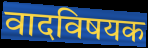
वादविषयक